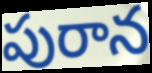
పురాన